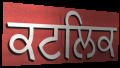
ਕਟਲਿਕ